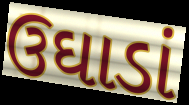
ઉઘાડાં